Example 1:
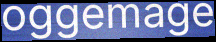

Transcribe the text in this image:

oggemage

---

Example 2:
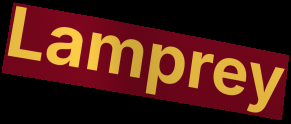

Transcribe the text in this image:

Lamprey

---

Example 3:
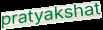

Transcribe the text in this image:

pratyakshat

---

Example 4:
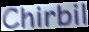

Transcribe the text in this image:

Chirbil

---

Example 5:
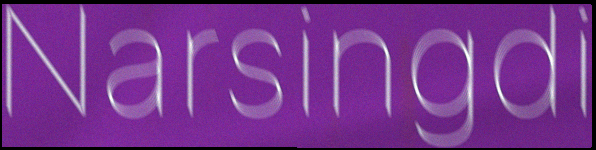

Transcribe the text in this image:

Narsingdi